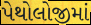
પેથોલોજીમાં